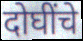
दोघींचे